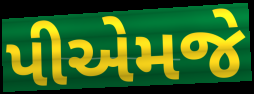
પીએમજે